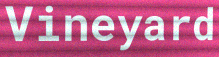
Vineyard